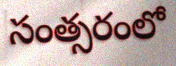
సంత్సరంలో